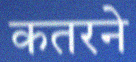
कतरने